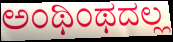
ಅಂಥಿಂಥದಲ್ಲ